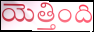
యెత్తింది